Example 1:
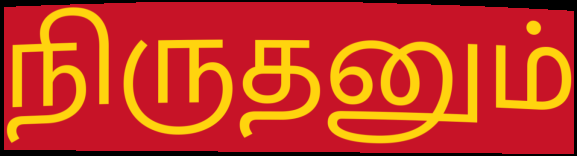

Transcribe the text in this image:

நிருதனும்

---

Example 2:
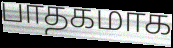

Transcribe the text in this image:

பாதகமாக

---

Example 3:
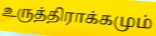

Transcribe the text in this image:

உருத்திராக்கமும்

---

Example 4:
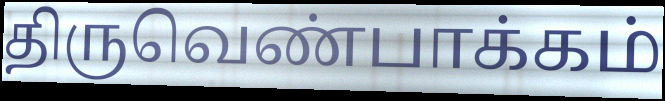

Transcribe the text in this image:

திருவெண்பாக்கம்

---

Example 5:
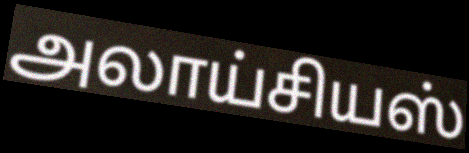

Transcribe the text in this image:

அலாய்சியஸ்